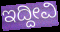
ಇದ್ದೀವಿ